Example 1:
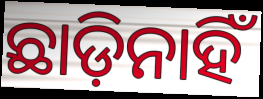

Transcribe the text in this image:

ଛାଡ଼ିନାହିଁ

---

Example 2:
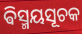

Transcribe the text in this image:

ଵିସ୍ମୟସୂଚକ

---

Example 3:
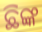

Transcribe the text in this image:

ଛିଙ୍କ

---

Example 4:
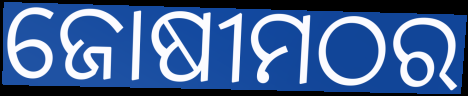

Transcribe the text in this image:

ଜୋଷୀମଠର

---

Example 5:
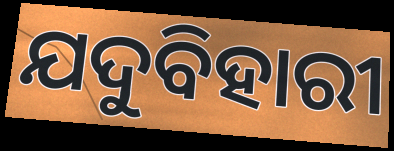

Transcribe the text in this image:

ଯଦୁବିହାରୀ